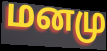
மனமு